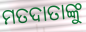
ମତଦାତାଙ୍କୁ